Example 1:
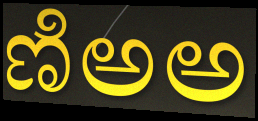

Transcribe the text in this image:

ణిఅఅ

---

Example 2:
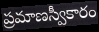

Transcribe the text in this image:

ప్రమాణస్వీకారం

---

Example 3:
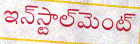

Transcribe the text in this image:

ఇన్‌స్టాల్‌మెంట్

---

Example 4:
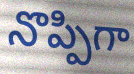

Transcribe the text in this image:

నొప్పిగా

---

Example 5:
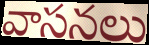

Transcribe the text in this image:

వాసనలు